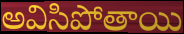
అవిసిపోతాయి